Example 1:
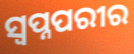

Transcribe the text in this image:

ସ୍ୱପ୍ନପରୀର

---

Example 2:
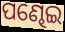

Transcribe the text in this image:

ପଣ୍ଢେଇ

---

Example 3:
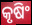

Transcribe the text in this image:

କୃଷିଂ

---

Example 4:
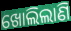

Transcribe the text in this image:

ଖୋଲିଲାଣି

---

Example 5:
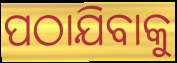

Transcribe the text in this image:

ପଠାଯିବାକୁ